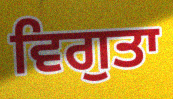
ਵਿਗੁਤਾ